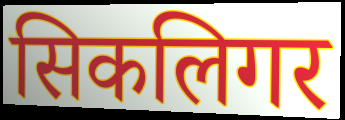
सिकलिगर